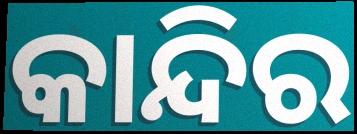
କାନ୍ଦିର